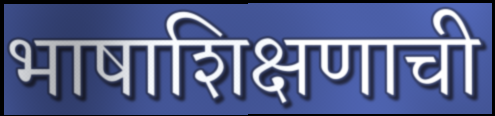
भाषाशिक्षणाची